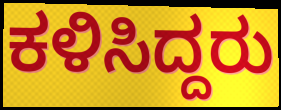
ಕಳಿಸಿದ್ದರು